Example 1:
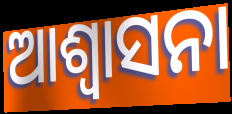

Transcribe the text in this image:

ଆଶ୍ୱାସନା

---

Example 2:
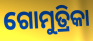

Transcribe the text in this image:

ଗୋମୁତ୍ରିକା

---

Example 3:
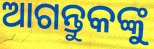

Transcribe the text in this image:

ଆଗନ୍ତୁକଙ୍କୁ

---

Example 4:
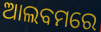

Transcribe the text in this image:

ଆଲବମରେ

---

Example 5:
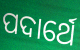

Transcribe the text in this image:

ପଦାର୍ଥେ